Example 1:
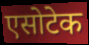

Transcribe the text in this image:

एसोटेक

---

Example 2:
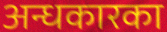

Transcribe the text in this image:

अन्धकारका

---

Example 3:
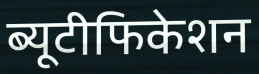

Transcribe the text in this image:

ब्यूटीफिकेशन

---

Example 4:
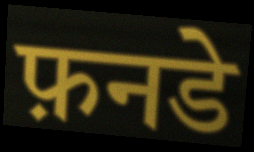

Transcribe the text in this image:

फ़नडे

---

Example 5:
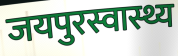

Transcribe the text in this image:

जयपुरस्वास्थ्य